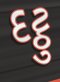
દટ્ઠુ